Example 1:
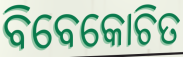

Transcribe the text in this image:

ବିବେକୋଚିତ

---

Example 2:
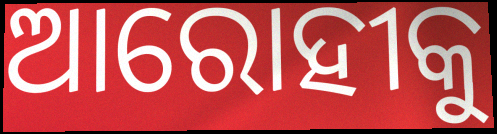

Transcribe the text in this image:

ଆରୋହୀକୁ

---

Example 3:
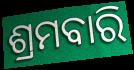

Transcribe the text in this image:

ଶ୍ରମବାରି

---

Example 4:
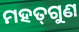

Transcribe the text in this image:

ମହତ୍‍ଗୁଣ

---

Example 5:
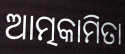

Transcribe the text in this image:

ଆତ୍ମକାମିତା